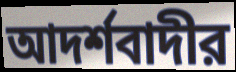
আদর্শবাদীর